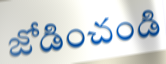
జోడించండి